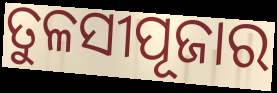
ତୁଳସୀପୂଜାର